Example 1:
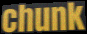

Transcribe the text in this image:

chunk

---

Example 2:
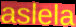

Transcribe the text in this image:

aslela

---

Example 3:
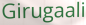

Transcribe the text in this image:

Girugaali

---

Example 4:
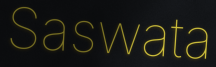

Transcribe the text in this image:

Saswata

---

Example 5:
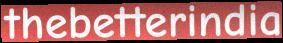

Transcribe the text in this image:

thebetterindia